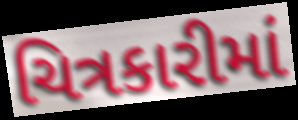
ચિત્રકારીમાં